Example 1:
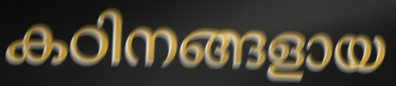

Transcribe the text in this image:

കഠിനങ്ങളായ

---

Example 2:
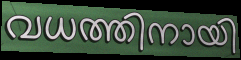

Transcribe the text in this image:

വധത്തിനായി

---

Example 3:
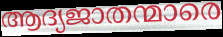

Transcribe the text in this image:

ആദ്യജാതന്മാരെ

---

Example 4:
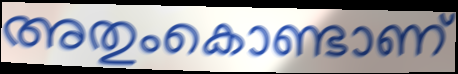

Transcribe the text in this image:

അതുംകൊണ്ടാണ്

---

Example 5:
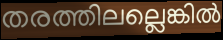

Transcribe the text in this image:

തരത്തിലല്ലെങ്കിൽ